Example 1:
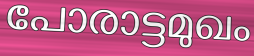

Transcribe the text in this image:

പോരാട്ടമുഖം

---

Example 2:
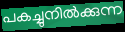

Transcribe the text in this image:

പകച്ചുനിൽക്കുന്ന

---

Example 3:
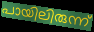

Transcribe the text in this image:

പായിലിരുന്ന്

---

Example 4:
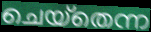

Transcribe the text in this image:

ചെയ്‌തെന്ന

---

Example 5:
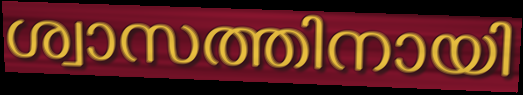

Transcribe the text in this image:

ശ്വാസത്തിനായി